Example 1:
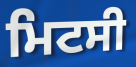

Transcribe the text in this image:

ਮਿਟਸੀ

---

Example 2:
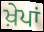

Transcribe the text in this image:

ਖ਼ੇਪਾਂ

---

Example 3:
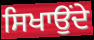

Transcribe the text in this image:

ਸਿਖਾਉਂਦੇ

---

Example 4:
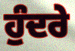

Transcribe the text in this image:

ਹੁੰਦਰੇ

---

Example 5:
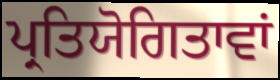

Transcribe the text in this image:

ਪ੍ਰਤਿਯੋਗਿਤਾਵਾਂ